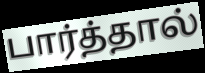
பார்த்தால்